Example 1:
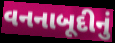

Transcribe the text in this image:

વનનાબૂદીનું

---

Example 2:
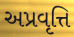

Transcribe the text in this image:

અપ્રવૃત્તિ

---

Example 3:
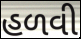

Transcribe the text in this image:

હળવી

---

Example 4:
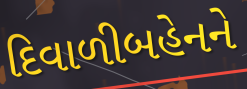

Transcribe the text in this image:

દિવાળીબહેનને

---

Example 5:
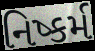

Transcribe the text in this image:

નિષ્કર્મ